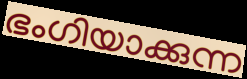
ഭംഗിയാക്കുന്ന